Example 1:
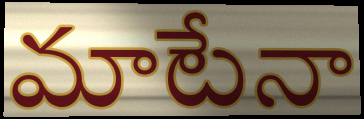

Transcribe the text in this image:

మాటేనా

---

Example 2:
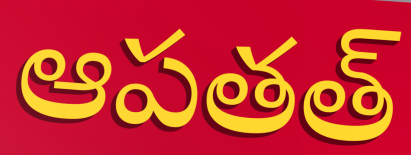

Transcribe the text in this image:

ఆపతత్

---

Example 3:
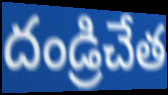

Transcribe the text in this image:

దండ్రిచేత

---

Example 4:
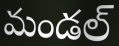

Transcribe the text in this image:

మండల్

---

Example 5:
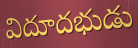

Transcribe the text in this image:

విదూదభుడు